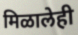
मिळालेही